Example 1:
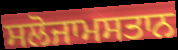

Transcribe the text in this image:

ਸਲੋਜਾਮਸਤਾਨ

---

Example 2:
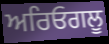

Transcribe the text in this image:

ਅਰਿਓਗਲੂ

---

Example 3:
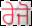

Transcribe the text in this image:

ਰੇਜੋ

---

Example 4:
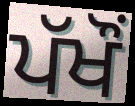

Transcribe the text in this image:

ਪੱਖੌਂ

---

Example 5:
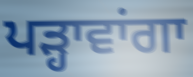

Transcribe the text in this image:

ਪੜ੍ਹਾਵਾਂਗਾ